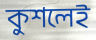
কুশলেই